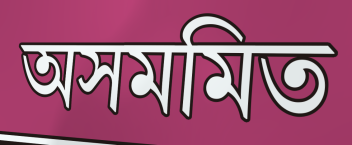
অসমমিত